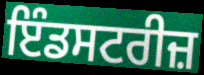
ਇੰਡਸਟਰੀਜ਼